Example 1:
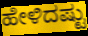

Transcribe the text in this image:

ಹೇಳಿದಷ್ಟು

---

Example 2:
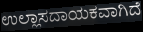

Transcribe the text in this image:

ಉಲ್ಲಾಸದಾಯಕವಾಗಿದೆ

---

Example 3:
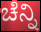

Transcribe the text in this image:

ಚೆನ್ನಿ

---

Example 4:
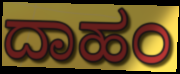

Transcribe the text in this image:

ದಾಹಂ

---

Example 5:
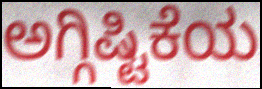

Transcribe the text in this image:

ಅಗ್ಗಿಷ್ಟಿಕೆಯ